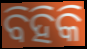
ବିହିକି